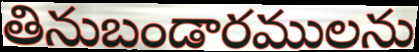
తినుబండారములను